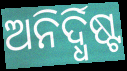
ଅନିର୍ଦ୍ଧିଷ୍ଟ